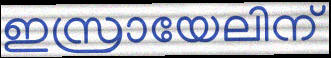
ഇസ്രായേലിന്